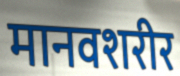
मानवशरीर